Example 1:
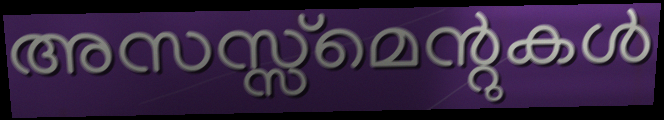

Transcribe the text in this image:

അസസ്സ്മെന്റുകൾ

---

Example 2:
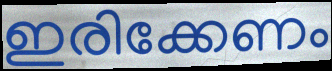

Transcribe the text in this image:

ഇരിക്കേണം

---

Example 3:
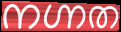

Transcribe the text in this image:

നഗ്നത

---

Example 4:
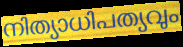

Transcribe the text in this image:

നിത്യാധിപത്യവും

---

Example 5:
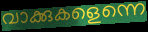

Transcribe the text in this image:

വാക്കുകളെന്നെ